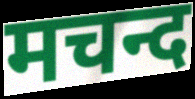
मचन्द